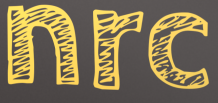
nrc